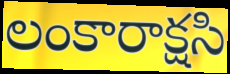
లంకారాక్షసి